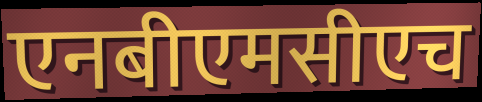
एनबीएमसीएच